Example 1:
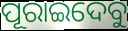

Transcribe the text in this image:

ପୂରାଇଦେବୁ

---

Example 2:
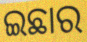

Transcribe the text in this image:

ଇଛାର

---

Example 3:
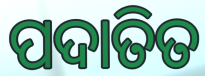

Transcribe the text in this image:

ପଦାତିତ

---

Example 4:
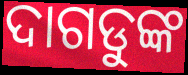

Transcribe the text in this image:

ଦାଗଡୁଙ୍କ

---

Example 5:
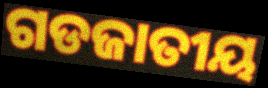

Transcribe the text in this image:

ଗଡଜାତୀୟ